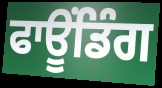
ਫਾਊਂਡਿੰਗ